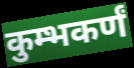
कुम्भकर्णं